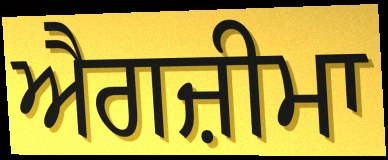
ਐਗਜ਼ੀਮਾ